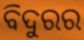
ବିଦୁରର